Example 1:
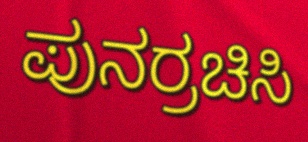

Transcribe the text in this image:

ಪುನರ್ರಚಿಸಿ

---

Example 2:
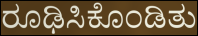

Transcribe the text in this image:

ರೂಢಿಸಿಕೊಂಡಿತು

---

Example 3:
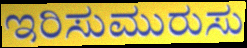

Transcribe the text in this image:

ಇರಿಸುಮುರುಸು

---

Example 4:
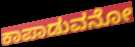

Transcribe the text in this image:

ಕಾಪಾಡುವನೋ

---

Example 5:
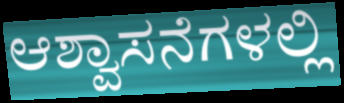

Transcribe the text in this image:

ಆಶ್ವಾಸನೆಗಳಲ್ಲಿ